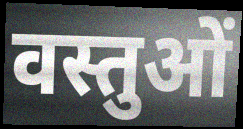
वस्तुओं